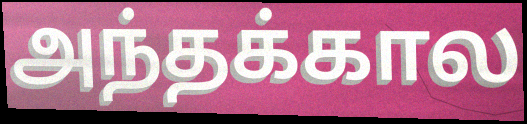
அந்தக்கால